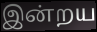
இன்றய